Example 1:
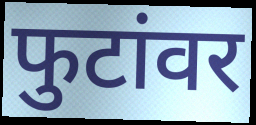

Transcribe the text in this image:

फुटांवर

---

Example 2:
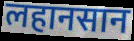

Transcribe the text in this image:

लहानसान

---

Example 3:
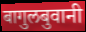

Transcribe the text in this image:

बागुलबुवानी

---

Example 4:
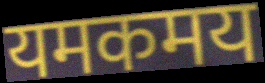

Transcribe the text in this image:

यमकमय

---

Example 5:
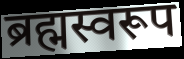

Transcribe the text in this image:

ब्रह्मस्वरूप